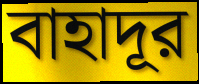
বাহাদূর